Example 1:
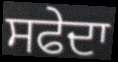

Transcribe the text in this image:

ਸਫੇਦਾ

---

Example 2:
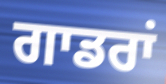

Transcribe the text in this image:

ਗਾਡਰਾਂ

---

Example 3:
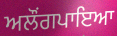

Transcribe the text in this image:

ਅਲੌਂਗਪਾਇਆ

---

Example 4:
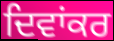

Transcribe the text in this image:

ਦਿਵਾਂਕਰ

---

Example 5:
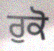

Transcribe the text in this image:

ਰੁਕੋ